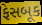
ફેસબૂક